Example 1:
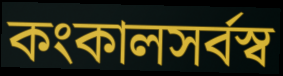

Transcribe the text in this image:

কংকালসর্বস্ব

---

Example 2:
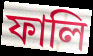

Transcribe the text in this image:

ফালি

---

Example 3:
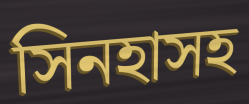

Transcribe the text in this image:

সিনহাসহ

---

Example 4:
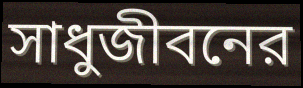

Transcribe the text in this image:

সাধুজীবনের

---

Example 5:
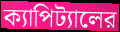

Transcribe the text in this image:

ক্যাপিট্যালের